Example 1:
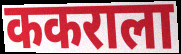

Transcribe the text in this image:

ककराला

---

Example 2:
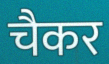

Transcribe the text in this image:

चैकर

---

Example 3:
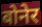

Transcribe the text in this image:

बोनेर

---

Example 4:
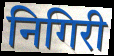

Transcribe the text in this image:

निगिरी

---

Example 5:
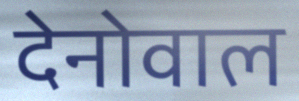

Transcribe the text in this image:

देनोवाल